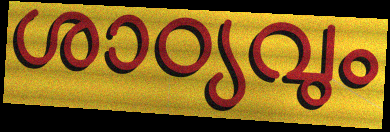
ശാഠ്യവും